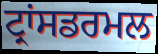
ਟ੍ਰਾਂਸਡਰਮਲ